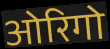
ओरिगो